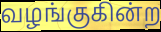
வழங்குகின்ற